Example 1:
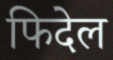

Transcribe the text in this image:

फिदेल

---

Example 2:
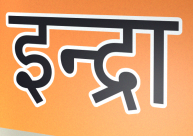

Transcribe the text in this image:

इन्द्रा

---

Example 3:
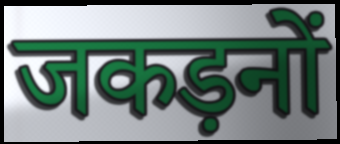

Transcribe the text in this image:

जकड़नों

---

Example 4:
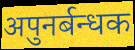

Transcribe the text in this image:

अपुनर्बन्धक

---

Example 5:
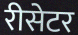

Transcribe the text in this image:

रीसेटर